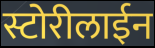
स्टोरीलाईन